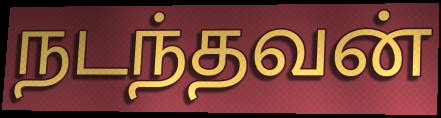
நடந்தவன்